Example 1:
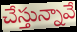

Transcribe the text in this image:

చేస్తున్నావే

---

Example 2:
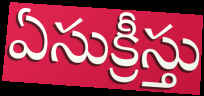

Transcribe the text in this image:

ఏసుక్రీస్తు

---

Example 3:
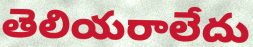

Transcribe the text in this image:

తెలియరాలేదు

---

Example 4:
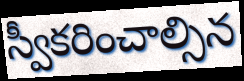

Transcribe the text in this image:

స్వీకరించాల్సిన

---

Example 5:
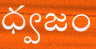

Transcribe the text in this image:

ధ్వజం